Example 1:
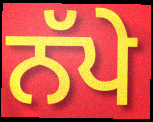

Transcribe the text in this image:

ਨੱਪੇ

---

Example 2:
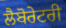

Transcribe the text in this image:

ਲੈਬੋਰੇਟਰੀ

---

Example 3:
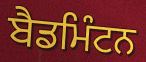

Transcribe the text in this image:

ਬੈਡਮਿੰਟਨ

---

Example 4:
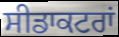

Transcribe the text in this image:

ਸੀਡਾਕਟਰਾਂ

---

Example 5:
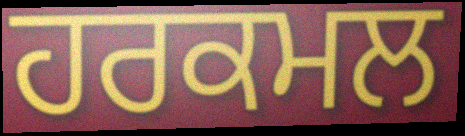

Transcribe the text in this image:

ਹਰਕਮਲ